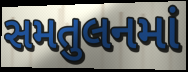
સમતુલનમાં